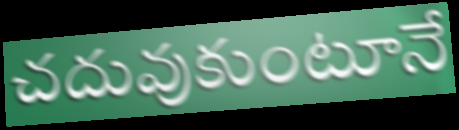
చదువుకుంటూనే